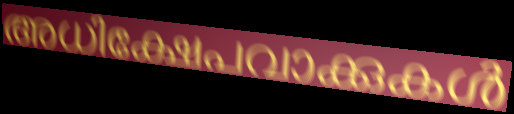
അധിക്ഷേപവാക്കുകൾ